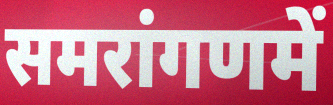
समरांगणमें